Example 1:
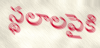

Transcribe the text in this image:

స్థలాలపైకి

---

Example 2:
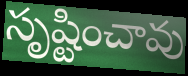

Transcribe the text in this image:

సృష్టించావు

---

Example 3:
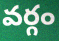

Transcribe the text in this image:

వర్గం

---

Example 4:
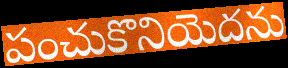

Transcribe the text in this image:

పంచుకొనియెదను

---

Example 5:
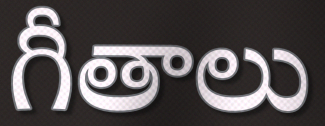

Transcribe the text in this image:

గీతాలు